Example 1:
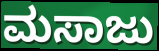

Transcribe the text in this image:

ಮಸಾಜು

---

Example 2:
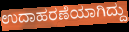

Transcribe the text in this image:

ಉದಾಹರಣೆಯಾಗಿದ್ದು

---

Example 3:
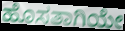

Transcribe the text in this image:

ಹೊಸತಾಗಿಯೇ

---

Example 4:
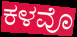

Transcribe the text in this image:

ಕಳವೊ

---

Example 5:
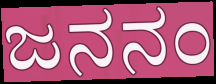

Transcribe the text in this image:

ಜನನಂ